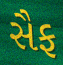
સૈફ